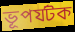
ভূপর্যটক